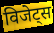
विजेट्स